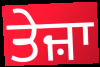
ਤੇਜ਼ਾ